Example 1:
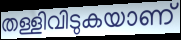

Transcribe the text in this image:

തള്ളിവിടുകയാണ്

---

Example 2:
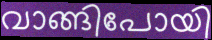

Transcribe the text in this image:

വാങ്ങിപോയി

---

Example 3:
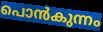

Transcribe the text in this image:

പൊൻകുന്നം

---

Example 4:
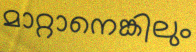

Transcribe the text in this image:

മാറ്റാനെങ്കിലും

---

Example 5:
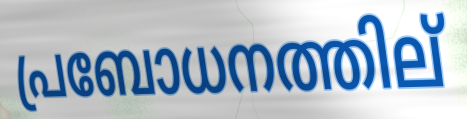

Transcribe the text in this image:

പ്രബോധനത്തില്